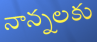
నాన్నలకు